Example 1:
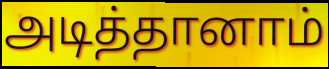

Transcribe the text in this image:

அடித்தானாம்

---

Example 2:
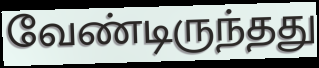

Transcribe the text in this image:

வேண்டிருந்தது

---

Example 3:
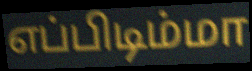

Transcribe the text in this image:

எப்பிடிம்மா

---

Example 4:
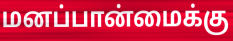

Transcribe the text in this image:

மனப்பான்மைக்கு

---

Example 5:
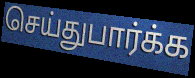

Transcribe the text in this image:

செய்துபார்க்க